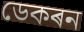
ডেকৰন